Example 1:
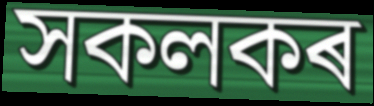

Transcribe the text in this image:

সকলকৰ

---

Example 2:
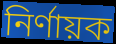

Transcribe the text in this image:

নিৰ্ণায়ক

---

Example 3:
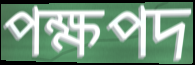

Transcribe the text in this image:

পক্ষপদ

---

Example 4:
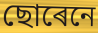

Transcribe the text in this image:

ছোৰেনে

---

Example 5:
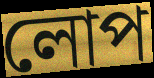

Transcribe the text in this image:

লোপ